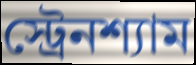
স্ট্রেনশ্যাম